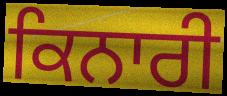
ਕਿਨਾਰੀ